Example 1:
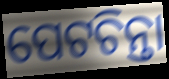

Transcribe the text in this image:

ପେଟଚିନ୍ତା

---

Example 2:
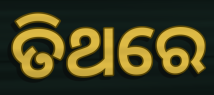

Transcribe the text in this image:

ତିଥରେ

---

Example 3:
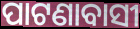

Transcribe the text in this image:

ପାଟଣାବାସୀ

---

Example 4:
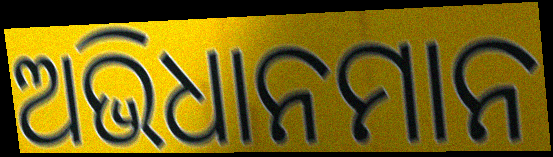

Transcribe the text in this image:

ଅଭିଧାନମାନ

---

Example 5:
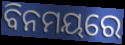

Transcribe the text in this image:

ବିନମୟରେ